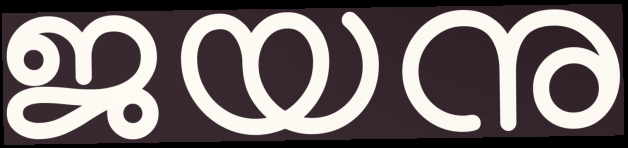
ജയനു